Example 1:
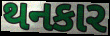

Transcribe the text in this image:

થનકાર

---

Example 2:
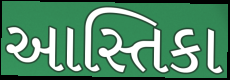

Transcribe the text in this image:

આસ્તિકા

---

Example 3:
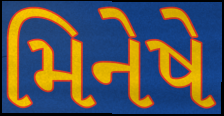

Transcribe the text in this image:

મિનેષે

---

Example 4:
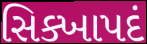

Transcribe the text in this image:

સિક્ખાપદં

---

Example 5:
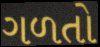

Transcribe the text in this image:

ગળતો